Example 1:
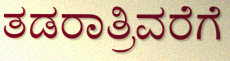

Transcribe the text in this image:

ತಡರಾತ್ರಿವರೆಗೆ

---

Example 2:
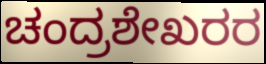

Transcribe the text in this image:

ಚಂದ್ರಶೇಖರರ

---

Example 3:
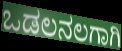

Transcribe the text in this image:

ಒಡಲನಲಗಾಗಿ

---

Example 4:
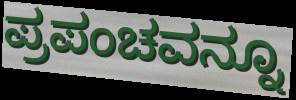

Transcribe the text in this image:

ಪ್ರಪಂಚವನ್ನೂ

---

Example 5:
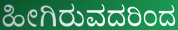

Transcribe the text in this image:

ಹೀಗಿರುವದರಿಂದ